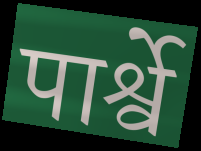
पार्श्वे